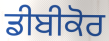
ਡੀਬੀਕੋਰ